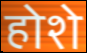
होशे